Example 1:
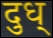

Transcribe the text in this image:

दुध्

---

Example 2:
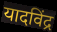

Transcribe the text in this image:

यादविंद्र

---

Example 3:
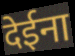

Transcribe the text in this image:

देईना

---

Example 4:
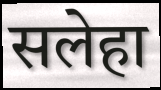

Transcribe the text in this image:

सलेहा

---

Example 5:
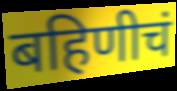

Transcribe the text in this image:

बहिणीचं